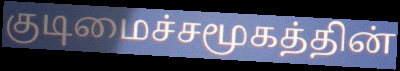
குடிமைச்சமூகத்தின்